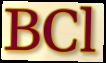
BCl